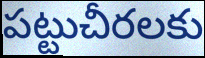
పట్టుచీరలకు